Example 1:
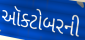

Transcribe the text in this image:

ઑક્ટોબરની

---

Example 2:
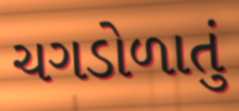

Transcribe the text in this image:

ચગડોળાતું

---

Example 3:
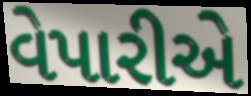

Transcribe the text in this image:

વેપારીએ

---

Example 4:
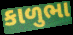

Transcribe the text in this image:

કાળુભા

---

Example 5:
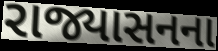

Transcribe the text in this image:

રાજ્યાસનના